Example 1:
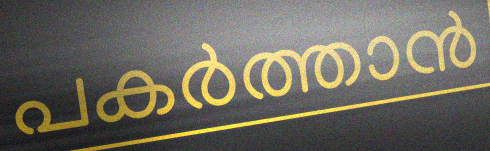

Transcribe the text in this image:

പകർത്താൻ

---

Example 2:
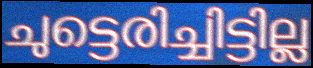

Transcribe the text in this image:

ചുട്ടെരിച്ചിട്ടില്ല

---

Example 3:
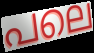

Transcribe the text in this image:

പലെ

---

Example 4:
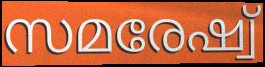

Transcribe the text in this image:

സമരേഷ്വ്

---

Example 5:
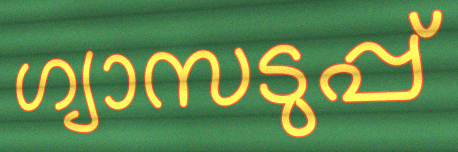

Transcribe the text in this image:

ഗ്യാസടുപ്പ്